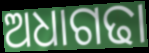
ଅଧାଗଢା